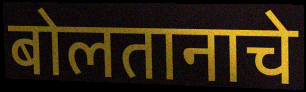
बोलतानाचे